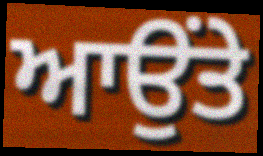
ਆਉਂਤੇ